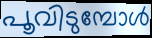
പൂവിടുമ്പോൾ